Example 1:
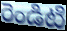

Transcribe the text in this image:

రెండిటి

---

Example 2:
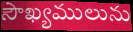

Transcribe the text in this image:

సౌఖ్యములును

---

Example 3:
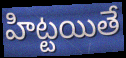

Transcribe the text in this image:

హిట్టయితే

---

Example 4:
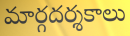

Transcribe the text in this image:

మార్గదర్శకాలు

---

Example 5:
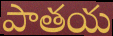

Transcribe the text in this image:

పాతయ